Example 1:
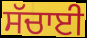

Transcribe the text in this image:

ਸੱਚਾਈ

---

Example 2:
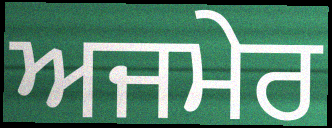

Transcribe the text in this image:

ਅਜਮੇਰ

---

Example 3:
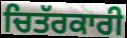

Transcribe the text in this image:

ਚਿਤੱਰਕਾਰੀ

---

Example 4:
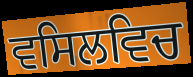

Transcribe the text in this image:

ਵਸਿਲਵਿਚ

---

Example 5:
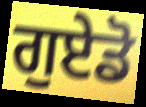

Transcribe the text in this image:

ਗੁਏਡੋ